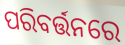
ପରିବର୍ତ୍ତନରେ